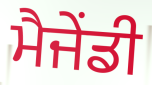
ਮੈਜੇਂਡੀ